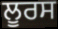
ਲੂਰਸ